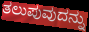
ತಲುಪುವುದನ್ನು